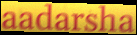
aadarsha